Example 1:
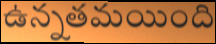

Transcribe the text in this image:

ఉన్నతమయింది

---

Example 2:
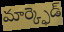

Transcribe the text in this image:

మార్క్ఫెడ్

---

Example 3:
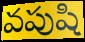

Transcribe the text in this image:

వపుషి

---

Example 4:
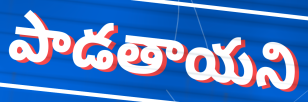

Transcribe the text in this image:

పాడతాయని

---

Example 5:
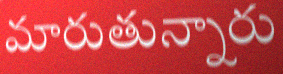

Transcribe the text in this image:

మారుతున్నారు